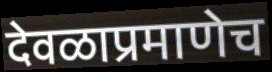
देवळाप्रमाणेच